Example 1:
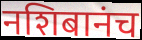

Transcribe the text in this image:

नशिबानंच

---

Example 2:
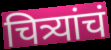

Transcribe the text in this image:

चित्र्यांचं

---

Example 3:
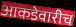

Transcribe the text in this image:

आकडेवारीच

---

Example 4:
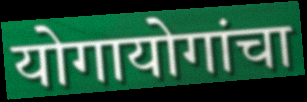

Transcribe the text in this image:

योगायोगांचा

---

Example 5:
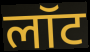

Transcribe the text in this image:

लॉट